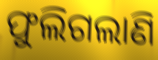
ଫୁଲିଗଲାଣି